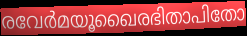
രവേർമയൂഖൈരഭിതാപിതോ